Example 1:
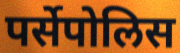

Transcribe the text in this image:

पर्सेपोलिस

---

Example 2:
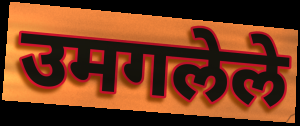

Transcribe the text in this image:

उमगलेले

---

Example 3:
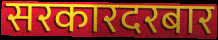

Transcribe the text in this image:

सरकारदरबार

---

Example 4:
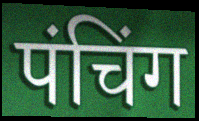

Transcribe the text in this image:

पंचिंग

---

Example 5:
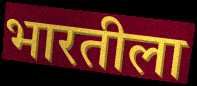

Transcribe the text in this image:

भारतीला